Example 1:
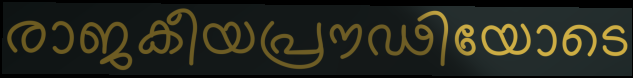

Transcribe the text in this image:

രാജകീയപ്രൗഢിയോടെ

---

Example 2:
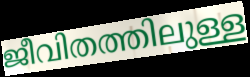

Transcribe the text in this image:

ജീവിതത്തിലുള്ള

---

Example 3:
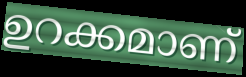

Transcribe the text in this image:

ഉറക്കമാണ്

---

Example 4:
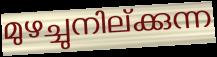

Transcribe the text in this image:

മുഴച്ചുനില്ക്കുന്ന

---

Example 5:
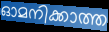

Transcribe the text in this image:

ഓമനിക്കാത്ത